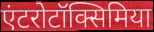
एंटरोटॉक्सिमिया